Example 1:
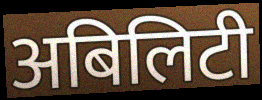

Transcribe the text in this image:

अबिलिटी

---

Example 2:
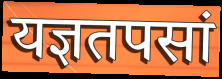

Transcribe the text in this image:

यज्ञतपसां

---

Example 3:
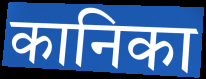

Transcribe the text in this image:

कानिका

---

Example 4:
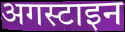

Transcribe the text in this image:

अगस्टाइन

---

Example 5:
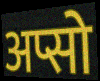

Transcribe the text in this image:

अप्सो